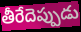
తీరేదెప్పుడు